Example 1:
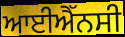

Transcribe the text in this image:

ਆਈਐੱਨਸੀ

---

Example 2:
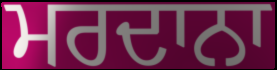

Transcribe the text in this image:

ਮਰਦਾਨਾ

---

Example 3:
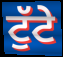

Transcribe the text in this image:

ਟੁੱਟੇ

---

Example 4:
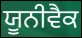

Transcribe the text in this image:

ਯੂਨੀਵੈਕ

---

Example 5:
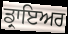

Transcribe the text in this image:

ਡ੍ਰਾਇਅਰ